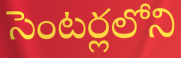
సెంటర్లలోని